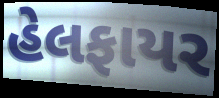
હેલફાયર